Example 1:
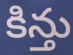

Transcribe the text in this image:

కిన్తు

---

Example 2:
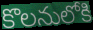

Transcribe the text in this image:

కొలనులోకి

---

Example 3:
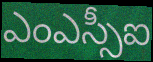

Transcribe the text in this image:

ఎంఎస్సీఐ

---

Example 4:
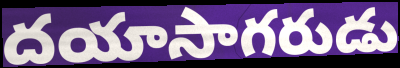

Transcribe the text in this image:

దయాసాగరుడు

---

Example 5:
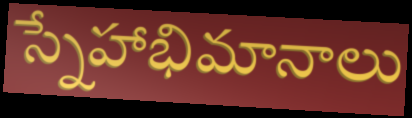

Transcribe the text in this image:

స్నేహాభిమానాలు